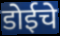
डोईचे